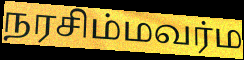
நரசிம்மவர்ம